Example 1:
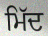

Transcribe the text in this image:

ਮਿੱਦ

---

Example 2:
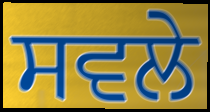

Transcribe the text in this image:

ਸਵਲੇ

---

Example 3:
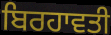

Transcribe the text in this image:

ਬਿਰਹਾਵਤੀ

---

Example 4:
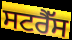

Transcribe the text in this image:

ਸਟਰੈੱਸ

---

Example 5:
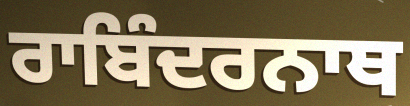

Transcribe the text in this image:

ਰਾਬਿੰਦਰਨਾਥ